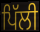
ਪਿੱਲੀ